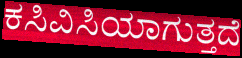
ಕಸಿವಿಸಿಯಾಗುತ್ತದೆ